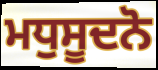
ਮਧੁਸੂਦਨੋ